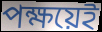
পক্ষয়েই